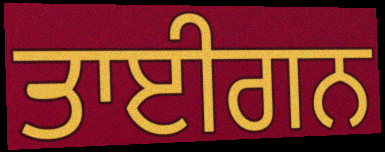
ਤਾਈਗਨ